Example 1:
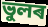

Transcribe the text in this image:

ভুলৰ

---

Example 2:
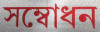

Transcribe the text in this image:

সম্বোধন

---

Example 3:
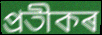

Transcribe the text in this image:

প্ৰতীকৰ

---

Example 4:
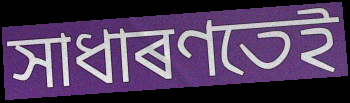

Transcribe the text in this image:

সাধাৰণতেই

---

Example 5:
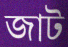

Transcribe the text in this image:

জাট